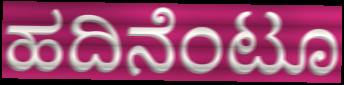
ಹದಿನೆಂಟೂ